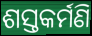
ଶସ୍ତକର୍ମଣି